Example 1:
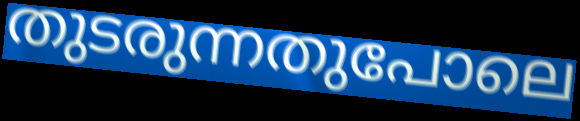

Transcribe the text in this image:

തുടരുന്നതുപോലെ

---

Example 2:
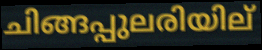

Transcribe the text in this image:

ചിങ്ങപ്പുലരിയില്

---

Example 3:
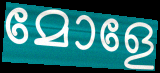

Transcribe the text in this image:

മോളേ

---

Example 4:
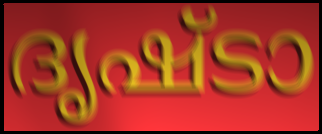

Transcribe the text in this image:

ദൃഷ്ടാ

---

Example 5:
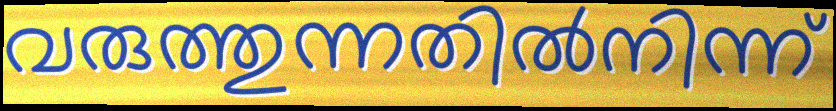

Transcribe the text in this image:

വരുത്തുന്നതിൽനിന്ന്